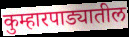
कुम्हारपाड्यातील